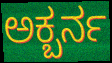
ಅಕ್ಬರ್ನ